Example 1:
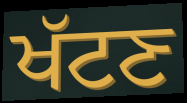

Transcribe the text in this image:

ਖੱਟਣ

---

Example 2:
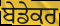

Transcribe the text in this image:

ਬੇਡੇਕਰ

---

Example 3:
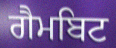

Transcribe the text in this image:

ਗੈਮਬਿਟ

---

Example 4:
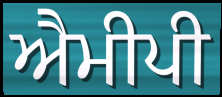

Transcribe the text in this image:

ਐਮੀਪੀ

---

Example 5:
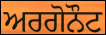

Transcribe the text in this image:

ਅਰਗੋਨੌਟ